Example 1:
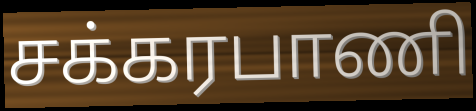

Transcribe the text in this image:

சக்கரபாணி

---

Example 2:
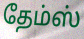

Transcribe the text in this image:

தேம்ஸ்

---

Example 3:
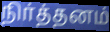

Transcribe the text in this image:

நிர்த்தனம்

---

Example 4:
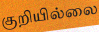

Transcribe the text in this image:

குறியில்லை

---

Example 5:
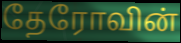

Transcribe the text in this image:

தேரோவின்